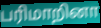
பரிமாறினா